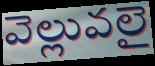
వెల్లువలై